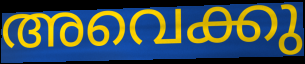
അവെക്കു